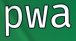
pwa